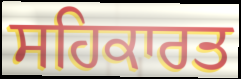
ਸਹਿਕਾਰਤ